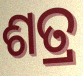
ଶତ୍ର